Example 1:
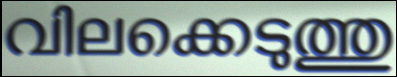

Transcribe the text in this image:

വിലക്കെടുത്തു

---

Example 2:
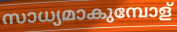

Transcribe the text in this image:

സാധ്യമാകുമ്പോള്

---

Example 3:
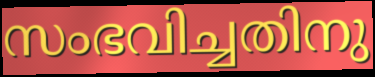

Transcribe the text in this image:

സംഭവിച്ചതിനു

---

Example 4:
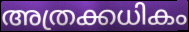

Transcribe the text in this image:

അത്രക്കധികം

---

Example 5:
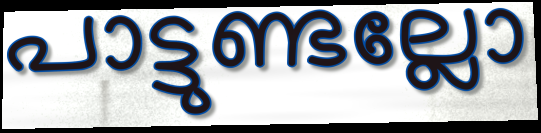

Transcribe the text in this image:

പാട്ടുണ്ടല്ലോ